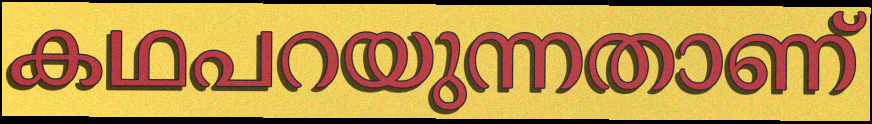
കഥപറയുന്നതാണ്